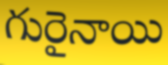
గురైనాయి